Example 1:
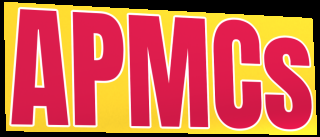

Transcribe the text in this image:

APMCs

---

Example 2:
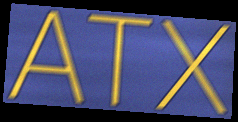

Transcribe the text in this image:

ATX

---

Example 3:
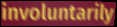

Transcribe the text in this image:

involuntarily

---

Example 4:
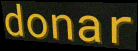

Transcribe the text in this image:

donar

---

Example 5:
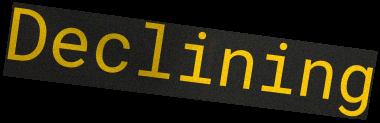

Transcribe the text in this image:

Declining